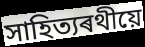
সাহিত্যৰথীয়ে